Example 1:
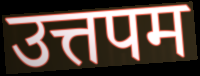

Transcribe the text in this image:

उत्तपम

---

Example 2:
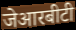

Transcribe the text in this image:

जेआरबीटी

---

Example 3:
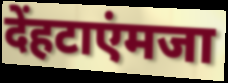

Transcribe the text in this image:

देंहटाएंमजा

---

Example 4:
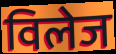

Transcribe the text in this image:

विलेज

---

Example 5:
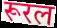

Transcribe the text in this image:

रूरल